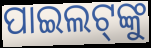
ପାଇଲଟ୍‌ଙ୍କୁ